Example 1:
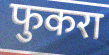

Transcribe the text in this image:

फुकरा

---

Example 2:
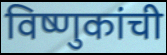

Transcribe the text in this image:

विष्णुकांची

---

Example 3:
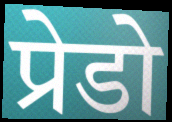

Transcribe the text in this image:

प्रेडो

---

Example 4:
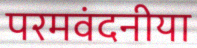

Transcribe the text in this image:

परमवंदनीया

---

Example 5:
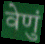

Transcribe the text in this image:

वेणुं